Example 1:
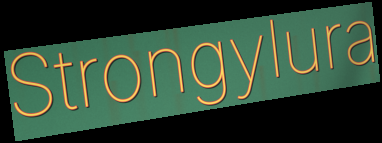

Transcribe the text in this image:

Strongylura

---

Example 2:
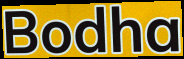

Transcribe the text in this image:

Bodha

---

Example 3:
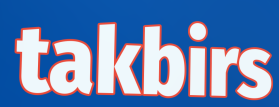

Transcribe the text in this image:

takbirs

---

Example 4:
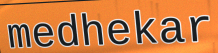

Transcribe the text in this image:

medhekar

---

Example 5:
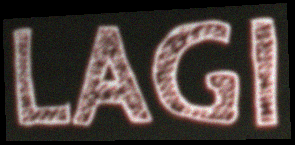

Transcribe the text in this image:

LAGI